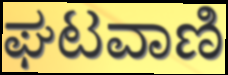
ಘಟವಾಣಿ